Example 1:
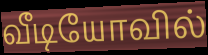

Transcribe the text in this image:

வீடியோவில்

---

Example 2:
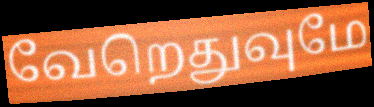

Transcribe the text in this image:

வேறெதுவுமே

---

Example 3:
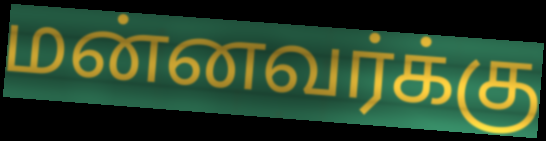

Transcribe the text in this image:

மன்னவர்க்கு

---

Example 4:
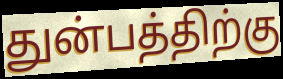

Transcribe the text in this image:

துன்பத்திற்கு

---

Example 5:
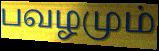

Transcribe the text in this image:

பவழமும்